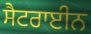
ਸੈਟਰਾਈਨ